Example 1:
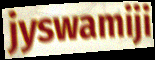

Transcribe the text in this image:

jyswamiji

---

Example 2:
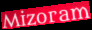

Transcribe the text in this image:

Mizoram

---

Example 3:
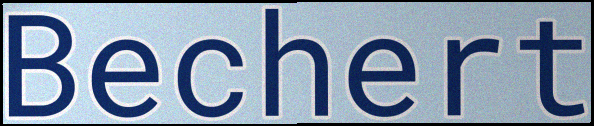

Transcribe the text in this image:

Bechert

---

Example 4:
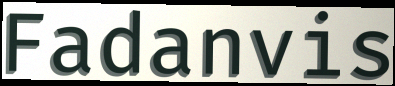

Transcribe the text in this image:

Fadanvis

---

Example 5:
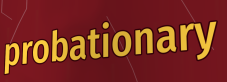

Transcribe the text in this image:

probationary